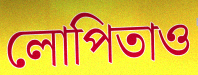
লোপিতাও